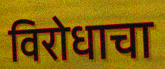
विरोधाचा